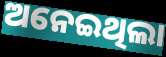
ଅନେଇଥିଲା